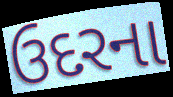
ઉદરના